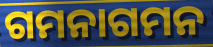
ଗମନାଗମନ